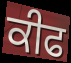
ਕੀਫ